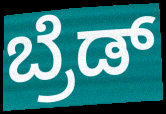
ಬ್ರೆಡ್